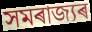
সমৰাজ্যৰ